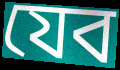
যেব